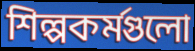
শিল্পকর্মগুলো